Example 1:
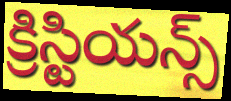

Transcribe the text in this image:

క్రిస్టియన్స్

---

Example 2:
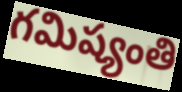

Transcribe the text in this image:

గమిష్యంతి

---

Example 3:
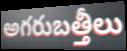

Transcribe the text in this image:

అగరుబత్తీలు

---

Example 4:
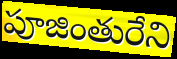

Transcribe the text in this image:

పూజింతురేని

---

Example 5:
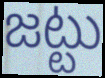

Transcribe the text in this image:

జట్టు